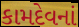
કામદેવનાં